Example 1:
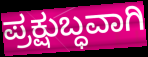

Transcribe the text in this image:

ಪ್ರಕ್ಷುಬ್ಧವಾಗಿ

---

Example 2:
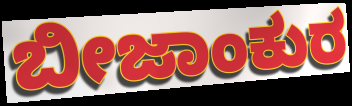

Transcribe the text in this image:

ಬೀಜಾಂಕುರ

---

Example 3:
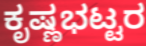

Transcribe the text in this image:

ಕೃಷ್ಣಭಟ್ಟರ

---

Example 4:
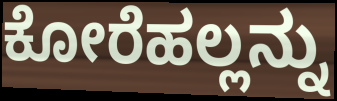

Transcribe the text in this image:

ಕೋರೆಹಲ್ಲನ್ನು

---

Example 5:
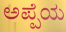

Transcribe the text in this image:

ಅಪ್ಪೆಯ